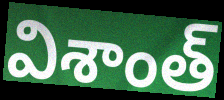
విశాంత్